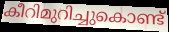
കീറിമുറിച്ചുകൊണ്ട്